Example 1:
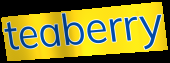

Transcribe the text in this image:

teaberry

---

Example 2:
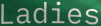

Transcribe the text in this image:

Ladies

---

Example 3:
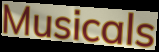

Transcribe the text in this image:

Musicals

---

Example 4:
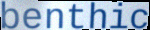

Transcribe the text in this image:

benthic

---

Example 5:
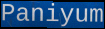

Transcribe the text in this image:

Paniyum